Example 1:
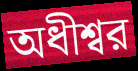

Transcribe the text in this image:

অধীশ্বর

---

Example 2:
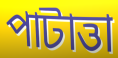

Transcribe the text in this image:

পাটাত্তা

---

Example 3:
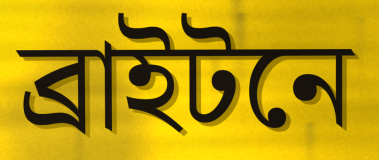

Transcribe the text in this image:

ব্রাইটনে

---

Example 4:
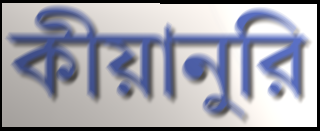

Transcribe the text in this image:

কীয়ানুরি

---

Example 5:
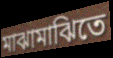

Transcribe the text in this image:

মাঝামাঝিতে